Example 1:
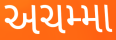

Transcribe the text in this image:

અચમ્મા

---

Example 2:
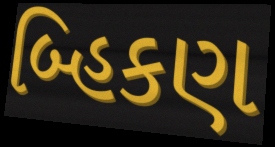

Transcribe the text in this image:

બ્હિકણ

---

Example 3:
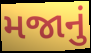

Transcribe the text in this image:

મજાનું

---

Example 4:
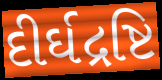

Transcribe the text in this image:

દીર્ઘદ્રષ્ટિ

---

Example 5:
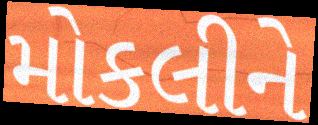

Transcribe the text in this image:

મોકલીને